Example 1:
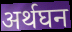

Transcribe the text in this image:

अर्थघन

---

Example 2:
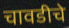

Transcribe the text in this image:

चावडीचे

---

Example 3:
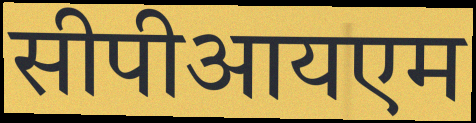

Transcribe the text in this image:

सीपीआयएम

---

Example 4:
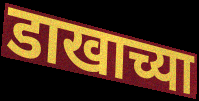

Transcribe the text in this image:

डाखाच्या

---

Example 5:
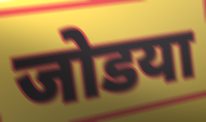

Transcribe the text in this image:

जोडया